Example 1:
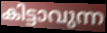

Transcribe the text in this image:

കിട്ടാവുന്ന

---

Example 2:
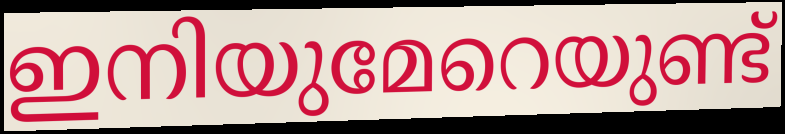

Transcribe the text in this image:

ഇനിയുമേറെയുണ്ട്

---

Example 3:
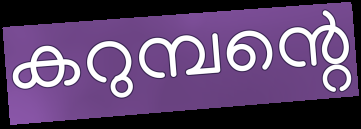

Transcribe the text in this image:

കറുമ്പന്റെ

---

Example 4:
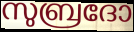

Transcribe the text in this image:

സുബ്രദോ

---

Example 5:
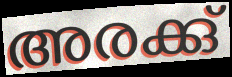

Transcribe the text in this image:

അരക്കു്